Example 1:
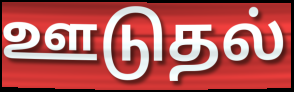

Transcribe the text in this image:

ஊடுதல்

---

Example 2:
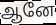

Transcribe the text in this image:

ஆனே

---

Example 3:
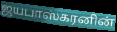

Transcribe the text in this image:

ஜயபாஸ்கரனின்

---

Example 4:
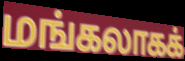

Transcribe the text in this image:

மங்கலாகக்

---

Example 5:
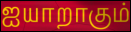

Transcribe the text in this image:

ஐயாறாகும்